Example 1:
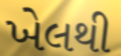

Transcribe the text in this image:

ખેલથી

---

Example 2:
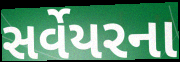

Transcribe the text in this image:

સર્વેયરના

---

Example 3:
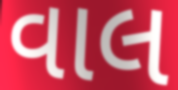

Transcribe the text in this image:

વાલ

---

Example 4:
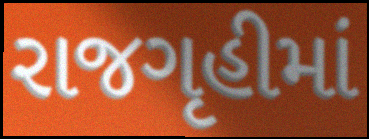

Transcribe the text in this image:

રાજગૃહીમાં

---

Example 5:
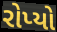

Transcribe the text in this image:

રોપ્યો